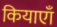
कियाएाँ